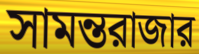
সামন্তরাজার